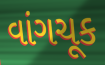
વાંગચૂક